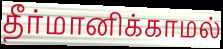
தீர்மானிக்காமல்